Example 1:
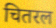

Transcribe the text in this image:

चितरल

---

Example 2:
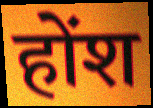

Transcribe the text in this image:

होंश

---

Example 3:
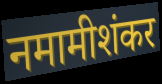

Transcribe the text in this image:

नमामीशंकर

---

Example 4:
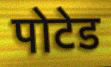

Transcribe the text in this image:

पोटेड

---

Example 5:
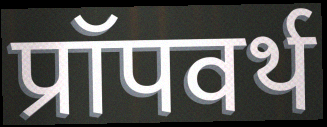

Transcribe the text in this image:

प्रॉपवर्थ